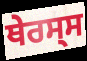
ਥੇਰਸ੍ਸ